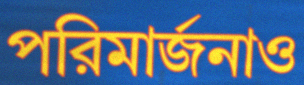
পরিমার্জনাও